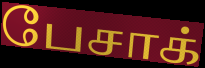
பேசாக்